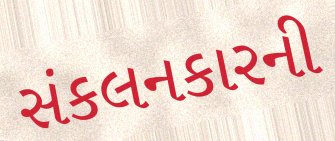
સંકલનકારની